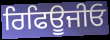
ਰਿਫਿਊਜੀਓ